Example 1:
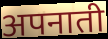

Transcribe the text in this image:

अपनाती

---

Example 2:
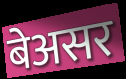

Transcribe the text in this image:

बेअसर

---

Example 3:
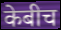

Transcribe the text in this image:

केबीच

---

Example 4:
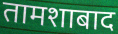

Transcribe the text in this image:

तामशाबाद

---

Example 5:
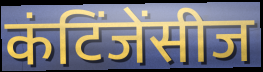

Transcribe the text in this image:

कंटिंजेंसीज